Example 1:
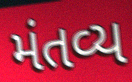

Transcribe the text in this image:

મંતવ્ય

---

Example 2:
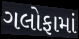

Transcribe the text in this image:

ગલોફામાં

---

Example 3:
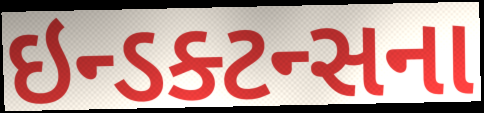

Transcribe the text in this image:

ઇન્ડક્ટન્સના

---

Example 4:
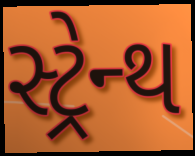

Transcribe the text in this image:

સ્ટ્રેન્થ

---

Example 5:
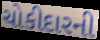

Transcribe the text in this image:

ચોકીદારની